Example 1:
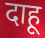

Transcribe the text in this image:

दाहू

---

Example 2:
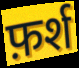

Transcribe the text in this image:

फ़र्श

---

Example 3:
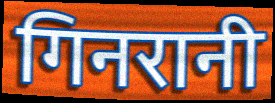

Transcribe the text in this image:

गिनरानी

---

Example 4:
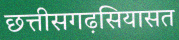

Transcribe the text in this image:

छत्तीसगढ़सियासत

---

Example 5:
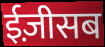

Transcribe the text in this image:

ईज़ीसब